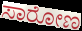
ಸಾರೋಣ